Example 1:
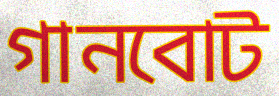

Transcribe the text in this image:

গানবোট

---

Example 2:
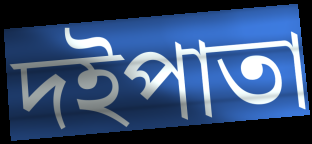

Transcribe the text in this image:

দইপাতা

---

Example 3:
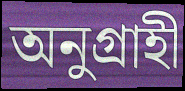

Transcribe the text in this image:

অনুগ্রাহী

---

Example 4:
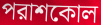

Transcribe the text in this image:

পরাশকোল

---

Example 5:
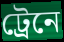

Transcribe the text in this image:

ট্রেনে